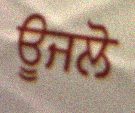
ਊਜਲੋ